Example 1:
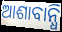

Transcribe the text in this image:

ଆଶାବାନ୍ଧି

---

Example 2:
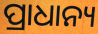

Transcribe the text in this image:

ପ୍ରାଧାନ୍ୟ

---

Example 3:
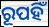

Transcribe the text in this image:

ରୂପହିଁ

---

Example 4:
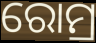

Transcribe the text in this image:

ରୋମ୍ର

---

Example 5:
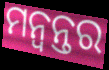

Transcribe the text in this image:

ମନ୍ୱନ୍ତର